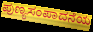
ಪುಣ್ಯಸಂಪಾದನೆಯ